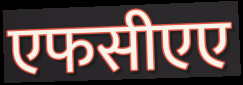
एफसीएए